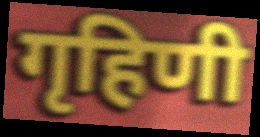
गृहिणी